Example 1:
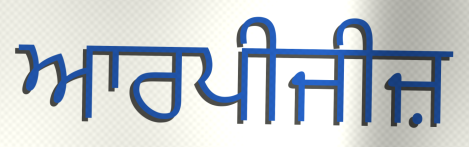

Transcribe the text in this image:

ਆਰਪੀਜੀਜ਼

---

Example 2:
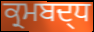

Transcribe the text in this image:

ਕ੍ਰਮਬਦ੍ਧ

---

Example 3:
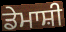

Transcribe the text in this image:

ਡੇਮਾਸ਼ੀ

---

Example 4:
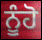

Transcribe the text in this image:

ਨੂੰਹੋ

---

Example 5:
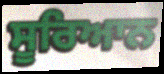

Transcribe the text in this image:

ਸੂਰਿਆਨ